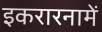
इकरारनामें